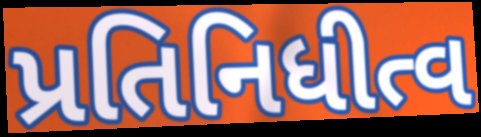
પ્રતિનિધીત્વ